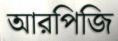
আরপিজি